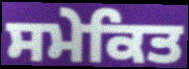
ਸਮੇਕਿਤ